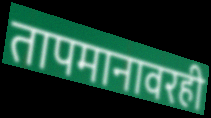
तापमानावरही